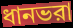
ধানভরা